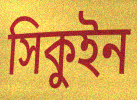
সিকুইন